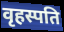
वृहस्पति